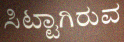
ಸಿಟ್ಟಾಗಿರುವ